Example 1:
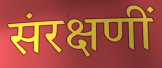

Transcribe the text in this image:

संरक्षणीं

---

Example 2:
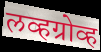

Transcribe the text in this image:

लव्हग्रोव्ह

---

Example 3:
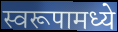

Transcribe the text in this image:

स्वरूपामध्ये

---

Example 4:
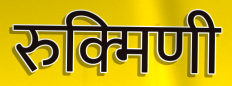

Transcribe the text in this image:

रुक्‍मिणी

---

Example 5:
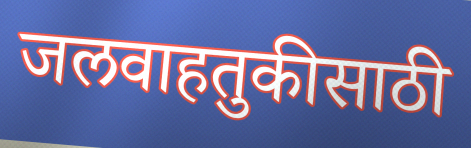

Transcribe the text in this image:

जलवाहतुकीसाठी